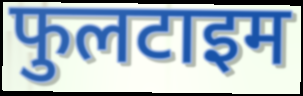
फुलटाइम